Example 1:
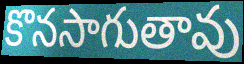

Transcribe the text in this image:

కొనసాగుతావు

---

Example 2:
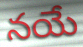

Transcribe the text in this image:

నయే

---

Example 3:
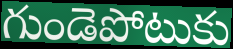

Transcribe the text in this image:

గుండెపోటుకు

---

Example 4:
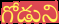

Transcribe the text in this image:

గోడుని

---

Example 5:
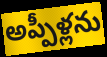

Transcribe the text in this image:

అప్పీళ్లను